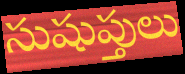
సుషుప్తులు